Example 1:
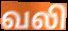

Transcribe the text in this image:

வலி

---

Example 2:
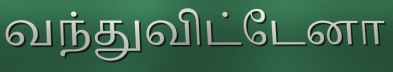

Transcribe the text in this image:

வந்துவிட்டேனா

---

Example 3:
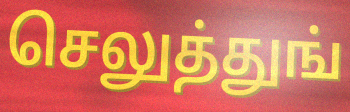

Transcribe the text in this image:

செலுத்துங்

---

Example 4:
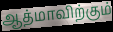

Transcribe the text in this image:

ஆத்மாவிற்கும்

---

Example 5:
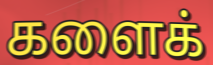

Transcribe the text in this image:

களைக்